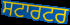
ਸਟਾਰਟਰ